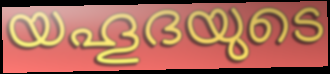
യഹൂദയുടെ